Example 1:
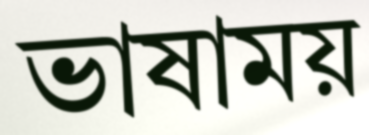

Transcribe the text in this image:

ভাষাময়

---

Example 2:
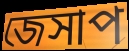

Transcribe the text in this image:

জেসাপ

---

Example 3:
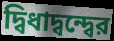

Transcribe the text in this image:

দ্বিধাদ্বন্দ্বের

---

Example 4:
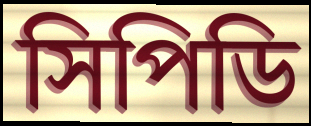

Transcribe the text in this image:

সিপিডি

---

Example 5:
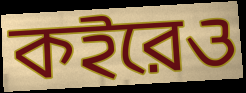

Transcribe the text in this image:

কইরেও